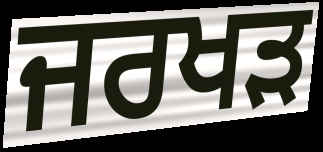
ਜਰਖੜ